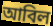
আবিল